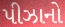
પીઝાનો